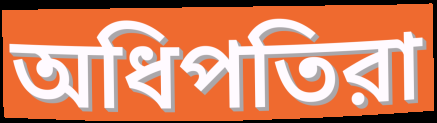
অধিপতিরা